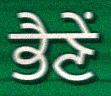
ਭੈਣੇਂ